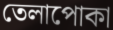
তেলাপোকা